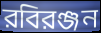
রবিরঞ্জন